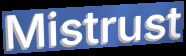
Mistrust